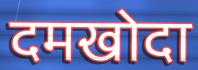
दमखोदा